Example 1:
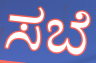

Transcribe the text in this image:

ಸಬೆ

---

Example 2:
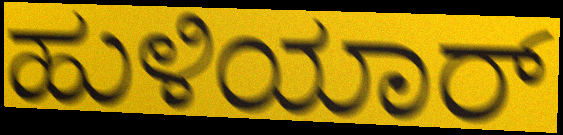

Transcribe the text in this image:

ಹುಳಿಯಾರ್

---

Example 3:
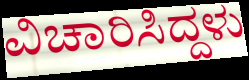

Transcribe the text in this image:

ವಿಚಾರಿಸಿದ್ದಳು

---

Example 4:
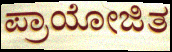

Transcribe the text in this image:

ಪ್ರಾಯೋಜಿತ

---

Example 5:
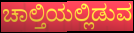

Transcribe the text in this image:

ಚಾಲ್ತಿಯಲ್ಲಿಡುವ